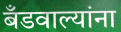
बँडवाल्यांना